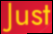
Just